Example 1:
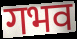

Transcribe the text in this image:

गभव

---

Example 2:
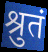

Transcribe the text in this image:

श्रुतं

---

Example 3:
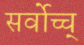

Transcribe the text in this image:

सर्वोच्च्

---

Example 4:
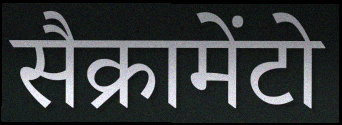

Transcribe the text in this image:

सैक्रामेंटो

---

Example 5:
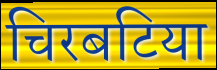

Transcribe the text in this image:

चिरबटिया